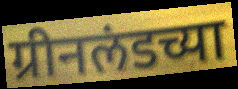
ग्रीनलंडच्या